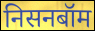
निसनबॉम